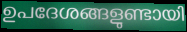
ഉപദേശങ്ങളുണ്ടായി